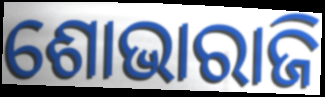
ଶୋଭାରାଜି